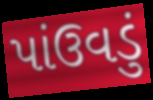
પાંઉવડું